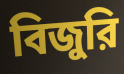
বিজুরি